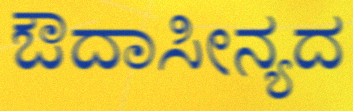
ಔದಾಸೀನ್ಯದ